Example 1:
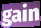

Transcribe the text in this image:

gain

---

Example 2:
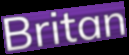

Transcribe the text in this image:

Britan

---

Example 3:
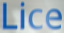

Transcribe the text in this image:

Lice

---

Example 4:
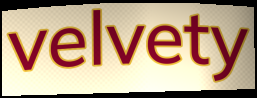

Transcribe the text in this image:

velvety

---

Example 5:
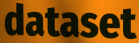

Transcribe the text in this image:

dataset